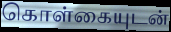
கொள்கையுடன்